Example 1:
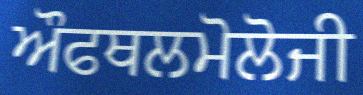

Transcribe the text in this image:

ਔਫਥਲਮੋਲੋਜੀ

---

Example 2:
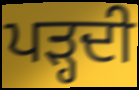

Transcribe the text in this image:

ਪੜ੍ਹਦੀ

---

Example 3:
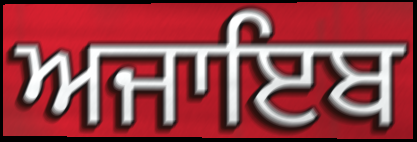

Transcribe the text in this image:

ਅਜਾਇਬ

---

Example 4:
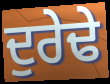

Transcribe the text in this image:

ਦੁਰੇਢੇ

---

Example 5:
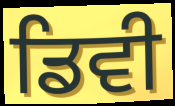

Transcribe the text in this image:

ਡਿਵੀ